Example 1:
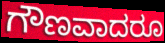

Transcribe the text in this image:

ಗೌಣವಾದರೂ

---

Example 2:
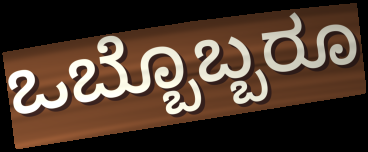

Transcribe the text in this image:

ಒಬ್ಬೊಬ್ಬರೂ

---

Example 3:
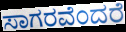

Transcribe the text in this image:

ಸಾಗರವೆಂದರೆ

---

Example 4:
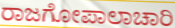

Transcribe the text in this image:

ರಾಜಗೋಪಾಲಾಚಾರಿ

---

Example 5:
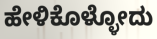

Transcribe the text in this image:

ಹೇಳಿಕೊಳ್ಳೋದು